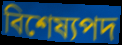
বিশেষ্যপদ